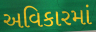
અવિકારમાં